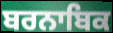
ਬਰਨਾਬਿਕ